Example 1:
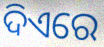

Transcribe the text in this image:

ଦିଏରେ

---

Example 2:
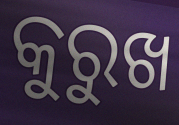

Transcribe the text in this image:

କୁରୁଖ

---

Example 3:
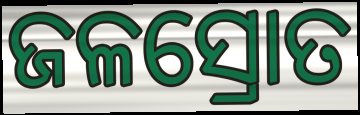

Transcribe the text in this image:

ଜଳସ୍ରୋତ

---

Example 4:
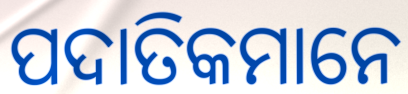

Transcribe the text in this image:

ପଦାତିକମାନେ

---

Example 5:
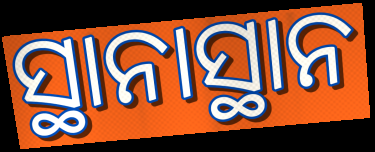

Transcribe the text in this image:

ସ୍ଥାନାସ୍ଥାନ